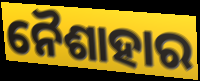
ନୈଶାହାର